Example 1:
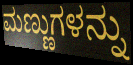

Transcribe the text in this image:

ಮಣ್ಣುಗಳನ್ನು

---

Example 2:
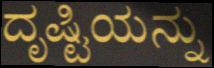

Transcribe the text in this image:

ದೃಷ್ಟಿಯನ್ನು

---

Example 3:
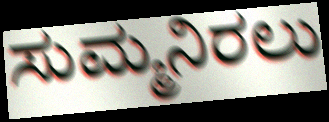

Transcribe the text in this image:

ಸುಮ್ಮನಿರಲು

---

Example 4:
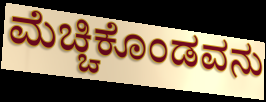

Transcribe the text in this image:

ಮೆಚ್ಚಿಕೊಂಡವನು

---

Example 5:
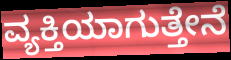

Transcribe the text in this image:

ವ್ಯಕ್ತಿಯಾಗುತ್ತೇನೆ